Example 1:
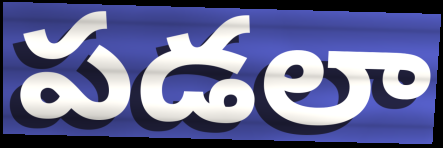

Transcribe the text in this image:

పడలా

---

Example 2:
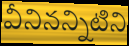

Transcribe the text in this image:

వీనినన్నిటిని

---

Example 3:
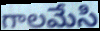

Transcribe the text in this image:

గాలమేసి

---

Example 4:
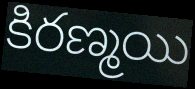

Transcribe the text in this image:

కిరణ్మయి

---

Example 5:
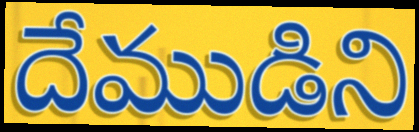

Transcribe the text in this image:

దేముడిని